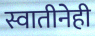
स्वातीनेही